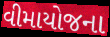
વીમાયોજના